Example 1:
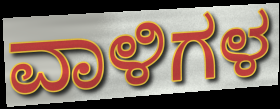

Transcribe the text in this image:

ವಾಳಿಗಳ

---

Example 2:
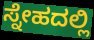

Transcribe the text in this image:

ಸ್ನೇಹದಲ್ಲಿ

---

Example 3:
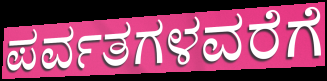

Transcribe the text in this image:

ಪರ್ವತಗಳವರೆಗೆ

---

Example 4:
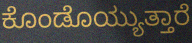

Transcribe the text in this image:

ಕೊಂಡೊಯ್ಯುತ್ತಾರೆ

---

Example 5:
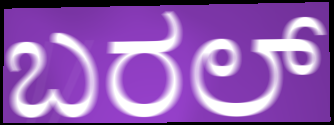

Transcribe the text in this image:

ಬರಲ್